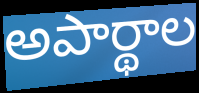
అపార్థాల